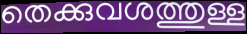
തെക്കുവശത്തുള്ള